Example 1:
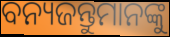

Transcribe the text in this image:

ବନ୍ୟଜନ୍ତୁମାନଙ୍କୁ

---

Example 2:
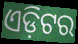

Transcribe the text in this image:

ଏଡ଼ିଟର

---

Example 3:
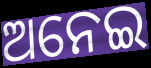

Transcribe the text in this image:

ଅନେଇ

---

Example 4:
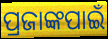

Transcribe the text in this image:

ପ୍ରଜାଙ୍କପାଇଁ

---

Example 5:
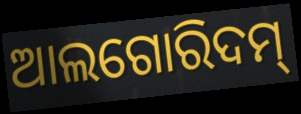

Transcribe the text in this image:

ଆଲଗୋରିଦମ୍